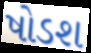
ષોડશ